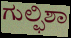
ಗುಲ್ಫಿಶಾ